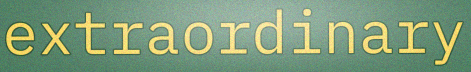
extraordinary